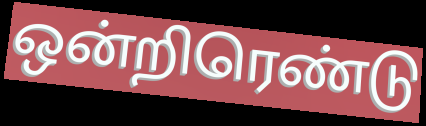
ஒன்றிரெண்டு